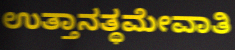
ಉತ್ತಾನತ್ಥಮೇವಾತಿ